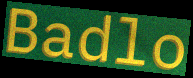
Badlo